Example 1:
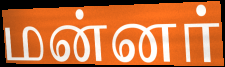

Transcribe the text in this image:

மன்னர்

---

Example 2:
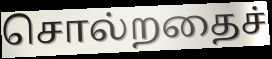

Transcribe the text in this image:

சொல்றதைச்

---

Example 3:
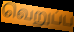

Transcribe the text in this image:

வெறுப்ப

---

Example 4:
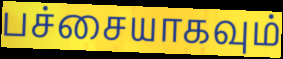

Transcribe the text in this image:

பச்சையாகவும்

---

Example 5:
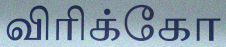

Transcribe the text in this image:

விரிக்கோ